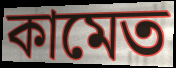
কামেত